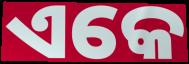
ଏକେ